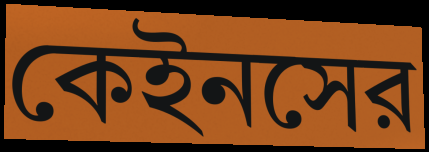
কেইনসের